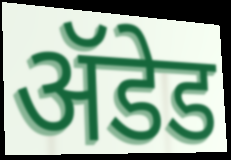
ॲडेड